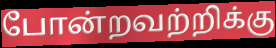
போன்றவற்றிக்கு